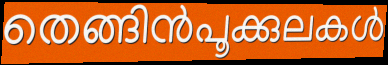
തെങ്ങിൻപൂക്കുലകൾ